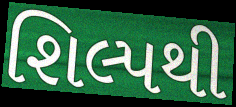
શિલ્પથી